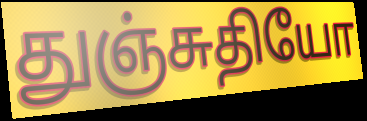
துஞ்சுதியோ